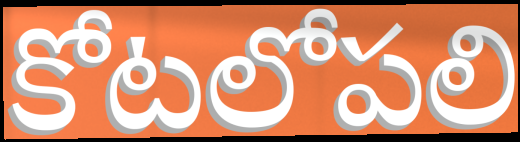
కోటలోపలి